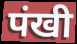
पंखी